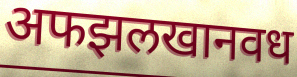
अफझलखानवध